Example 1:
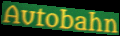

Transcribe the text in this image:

Autobahn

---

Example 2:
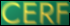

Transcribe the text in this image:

CERF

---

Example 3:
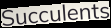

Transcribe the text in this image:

Succulents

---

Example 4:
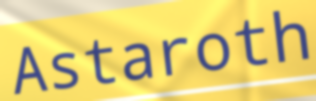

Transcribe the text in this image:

Astaroth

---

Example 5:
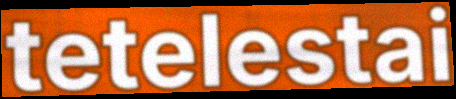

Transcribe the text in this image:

tetelestai